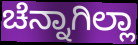
ಚೆನ್ನಾಗಿಲ್ಲಾ